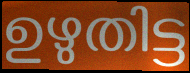
ഉഴുതിട്ട